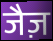
जैज़